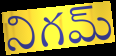
నిగమ్